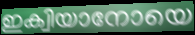
ഇക്വിയാനോയെ